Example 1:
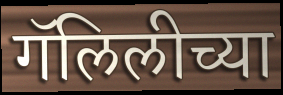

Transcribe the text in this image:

गॅलिलीच्या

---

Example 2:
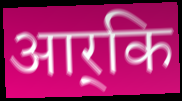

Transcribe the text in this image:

आर्कि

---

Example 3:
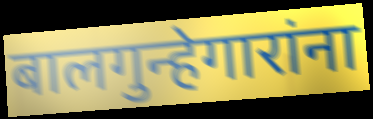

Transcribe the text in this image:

बालगुन्हेगारांना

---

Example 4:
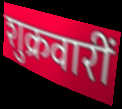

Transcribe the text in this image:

शुक्रवारीं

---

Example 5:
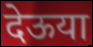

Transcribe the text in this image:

देऊया